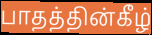
பாதத்தின்கீழ்